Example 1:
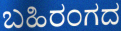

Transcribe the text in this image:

ಬಹಿರಂಗದ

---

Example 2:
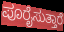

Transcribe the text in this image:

ಪೂರೈಸುತ್ತಾರೆ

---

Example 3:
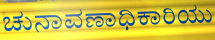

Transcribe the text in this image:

ಚುನಾವಣಾಧಿಕಾರಿಯು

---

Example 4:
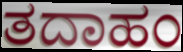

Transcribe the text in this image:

ತದಾಹಂ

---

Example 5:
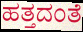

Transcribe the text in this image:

ಹತ್ತದಂತೆ